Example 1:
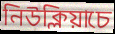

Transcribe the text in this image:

নিউক্লিয়াচে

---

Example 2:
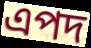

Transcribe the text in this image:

এপদ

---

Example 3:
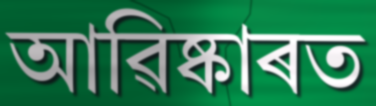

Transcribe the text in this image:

আৱিষ্কাৰত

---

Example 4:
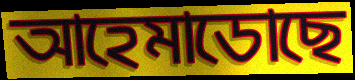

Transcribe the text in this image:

আহেমাডোছে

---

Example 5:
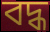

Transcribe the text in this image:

বদ্ধ